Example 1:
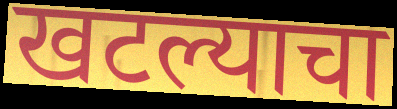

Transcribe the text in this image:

खटल्याचा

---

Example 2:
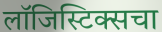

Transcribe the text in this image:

लॉजिस्टिक्सचा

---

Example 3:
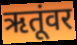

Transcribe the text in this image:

ऋतूंवर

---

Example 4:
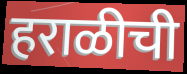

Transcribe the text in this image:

हराळीची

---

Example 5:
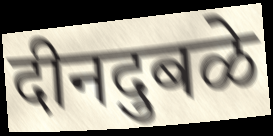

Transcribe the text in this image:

दीनदुबळे